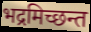
भद्रमिच्छन्त